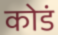
कोडं